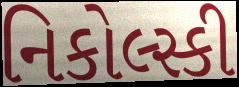
નિકોલ્સ્કી